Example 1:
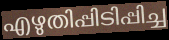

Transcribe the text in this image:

എഴുതിപ്പിടിപ്പിച്ച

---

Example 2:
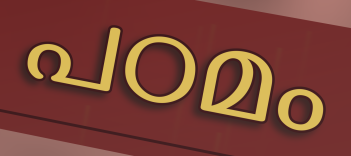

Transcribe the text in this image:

പഠമം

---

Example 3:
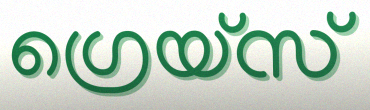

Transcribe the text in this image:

ഗ്രെയ്സ്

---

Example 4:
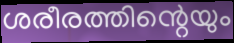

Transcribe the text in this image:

ശരീരത്തിന്റെയും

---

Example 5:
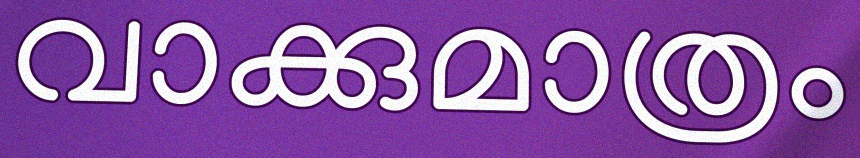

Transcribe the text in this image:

വാക്കുമാത്രം